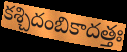
కశ్చిదంబికాదత్తః